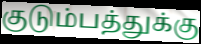
குடும்பத்துக்கு